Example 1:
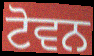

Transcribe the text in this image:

ਟੋਵਨ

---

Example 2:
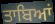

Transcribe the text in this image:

ਤਾਬਿਆਂ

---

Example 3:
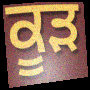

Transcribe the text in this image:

ਕੂੜ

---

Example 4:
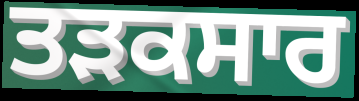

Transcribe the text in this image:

ਤੜਕਸਾਰ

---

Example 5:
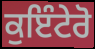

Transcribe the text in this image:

ਕੁਇੰਟੇਰੋ